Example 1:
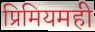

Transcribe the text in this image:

प्रिमियमही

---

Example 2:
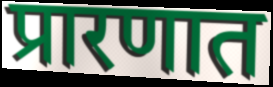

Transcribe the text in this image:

प्रारणात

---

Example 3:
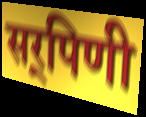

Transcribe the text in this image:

सर्पिणी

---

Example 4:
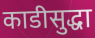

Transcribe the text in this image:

काडीसुद्धा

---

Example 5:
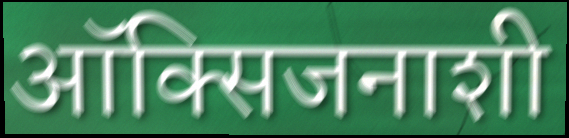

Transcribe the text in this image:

ऑक्सिजनाशी